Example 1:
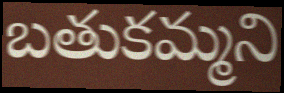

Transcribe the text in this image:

బతుకమ్మని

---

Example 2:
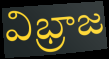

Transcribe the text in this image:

విభ్రాజ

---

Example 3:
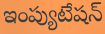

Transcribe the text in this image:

ఇంప్యుటేషన్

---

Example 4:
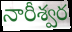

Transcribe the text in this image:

నారీశ్వర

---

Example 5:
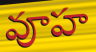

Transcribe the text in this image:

వూహ